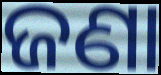
ଜଣା